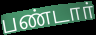
பண்டார்